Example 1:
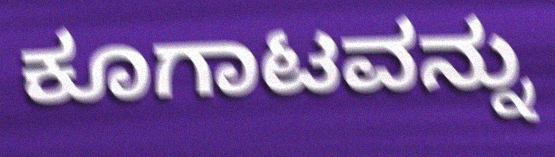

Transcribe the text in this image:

ಕೂಗಾಟವನ್ನು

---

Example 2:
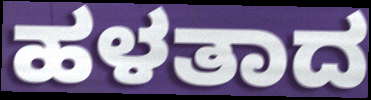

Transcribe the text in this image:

ಹಳತಾದ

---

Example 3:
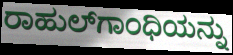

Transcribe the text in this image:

ರಾಹುಲ್‌ಗಾಂಧಿಯನ್ನು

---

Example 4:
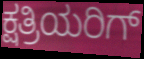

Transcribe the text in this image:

ಕ್ಷತ್ರಿಯರಿಗ್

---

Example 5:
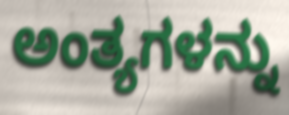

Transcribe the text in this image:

ಅಂತ್ಯಗಳನ್ನು